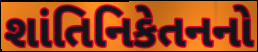
શાંતિનિકેતનનો